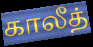
காலீத்